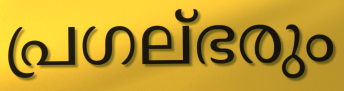
പ്രഗല്ഭരും